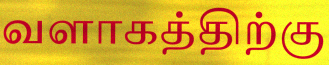
வளாகத்திற்கு